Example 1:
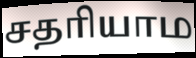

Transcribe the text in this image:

சதரியாம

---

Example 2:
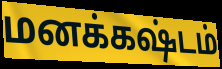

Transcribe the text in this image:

மனக்கஷ்டம்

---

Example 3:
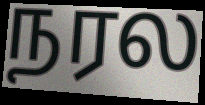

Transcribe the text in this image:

நரல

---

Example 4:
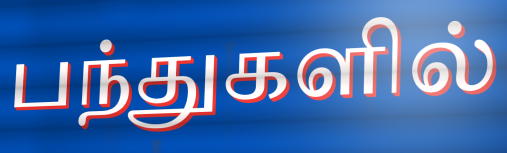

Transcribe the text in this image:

பந்துகளில்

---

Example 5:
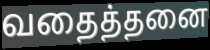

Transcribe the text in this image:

வதைத்தனை